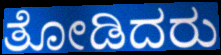
ತೋಡಿದರು